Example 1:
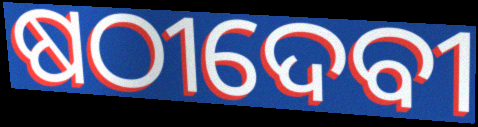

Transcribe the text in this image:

ଷଠୀଦେବୀ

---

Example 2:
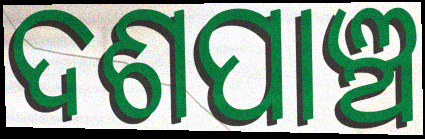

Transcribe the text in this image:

ଦଶପାଞ୍ଚ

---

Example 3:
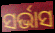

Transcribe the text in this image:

ସର୍ଭାସ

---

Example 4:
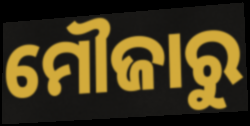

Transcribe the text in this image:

ମୌଜାରୁ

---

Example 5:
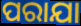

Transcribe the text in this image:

ପରାଯା